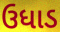
ઉધાડ